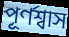
পূর্ণশ্বাস